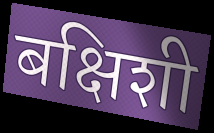
बक्षिशी